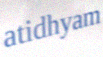
atidhyam